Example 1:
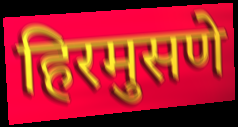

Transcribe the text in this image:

हिरमुसणे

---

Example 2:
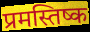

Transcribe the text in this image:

प्रमस्तिष्क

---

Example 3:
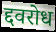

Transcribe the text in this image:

द्दवरोध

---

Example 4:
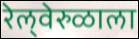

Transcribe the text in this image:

रेल्वेरुळाला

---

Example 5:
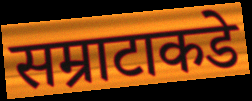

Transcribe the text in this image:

सम्राटाकडे